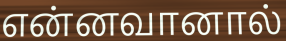
என்னவானால்